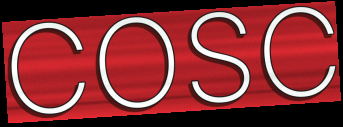
COSC